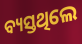
ବ୍ୟସ୍ତଥିଲେ